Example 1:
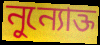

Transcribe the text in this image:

নুন্যোক্ত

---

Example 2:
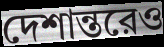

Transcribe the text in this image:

দেশান্তরেও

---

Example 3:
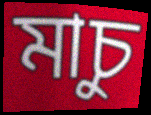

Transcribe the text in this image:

মাচু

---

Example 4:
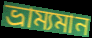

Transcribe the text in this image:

ভ্রাম্যমান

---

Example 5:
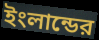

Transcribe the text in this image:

ইংলান্ডের